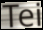
Tei